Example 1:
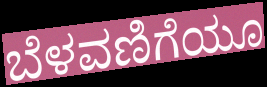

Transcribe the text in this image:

ಬೆಳವಣಿಗೆಯೂ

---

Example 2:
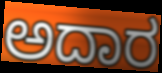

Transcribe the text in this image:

ಅದಾರ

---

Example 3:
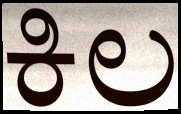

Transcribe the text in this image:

ಕಿಲ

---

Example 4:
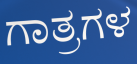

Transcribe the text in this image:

ಗಾತ್ರಗಳ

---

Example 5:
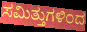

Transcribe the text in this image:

ಸಮಿತ್ತುಗಳಿಂದ